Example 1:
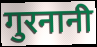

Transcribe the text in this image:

गुरनानी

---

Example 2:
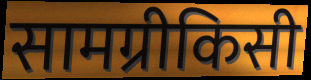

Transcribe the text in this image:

सामग्रीकिसी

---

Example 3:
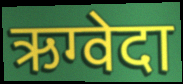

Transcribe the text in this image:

ऋग्वेदा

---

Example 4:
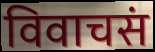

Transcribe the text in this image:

विवाचसं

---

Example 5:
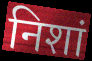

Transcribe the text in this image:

निशां